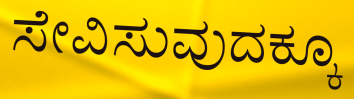
ಸೇವಿಸುವುದಕ್ಕೂ